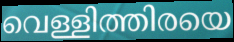
വെള്ളിത്തിരയെ